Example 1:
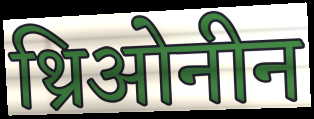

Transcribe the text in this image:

थ्रिओनीन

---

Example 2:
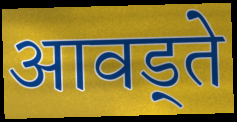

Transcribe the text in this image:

आवड्ते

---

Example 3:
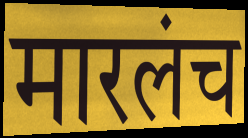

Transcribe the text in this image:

मारलंच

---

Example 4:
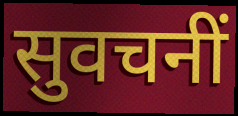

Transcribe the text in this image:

सुवचनीं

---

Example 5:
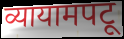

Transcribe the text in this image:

व्यायामपटू